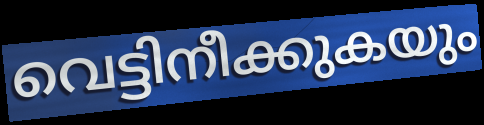
വെട്ടിനീക്കുകയും